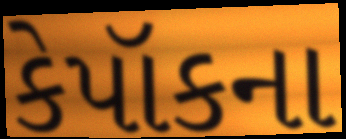
કેપૉકના